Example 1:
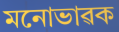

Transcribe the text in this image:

মনোভাৱক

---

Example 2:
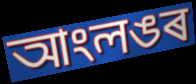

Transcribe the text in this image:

আংলঙৰ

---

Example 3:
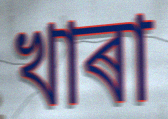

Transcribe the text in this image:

খাৰা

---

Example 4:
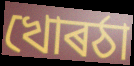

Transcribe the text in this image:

খোৰঠা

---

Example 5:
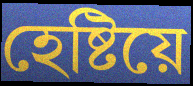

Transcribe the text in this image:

হেষ্টিয়ে